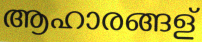
ആഹാരങ്ങള്